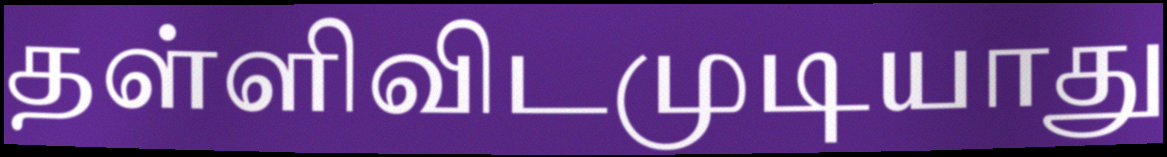
தள்ளிவிடமுடியாது